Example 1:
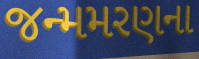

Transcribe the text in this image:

જન્મમરણના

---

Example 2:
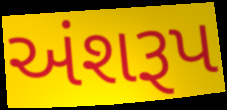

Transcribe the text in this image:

અંશરૂપ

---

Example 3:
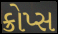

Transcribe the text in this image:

ક્રોપ્સ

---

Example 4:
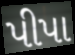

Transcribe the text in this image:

પીપા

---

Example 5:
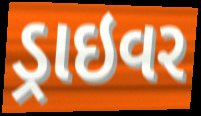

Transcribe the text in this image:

ડ્રાઇવર